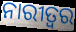
ନାରୀତ୍ଵର